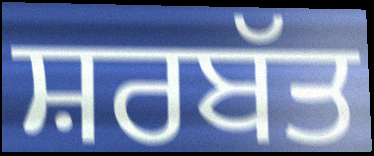
ਸ਼ਰਬੱਤ